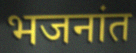
भजनांत